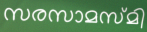
സരസാമസ്മി